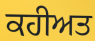
ਕਹੀਅਤ